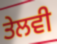
ਤੇਲਵੀ